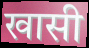
खासी